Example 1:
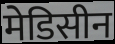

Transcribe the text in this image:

मेडिसीन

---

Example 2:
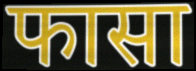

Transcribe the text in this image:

फासा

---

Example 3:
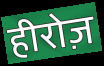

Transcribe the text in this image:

हीरोज़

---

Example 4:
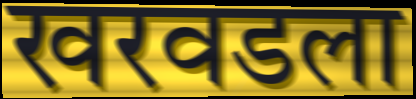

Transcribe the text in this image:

खरवडला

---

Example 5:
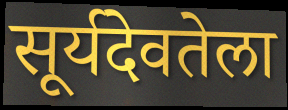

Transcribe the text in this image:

सूर्यदेवतेला